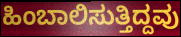
ಹಿಂಬಾಲಿಸುತ್ತಿದ್ದವು